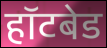
हॉटबेड